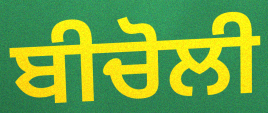
ਬੀਚੋਲੀ